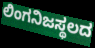
ಲಿಂಗನಿಜಸ್ಥಲದ